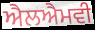
ਐਲਐਮਵੀ